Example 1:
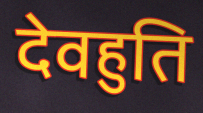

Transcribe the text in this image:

देवहुति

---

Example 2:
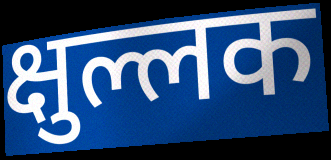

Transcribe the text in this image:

क्षुल्लक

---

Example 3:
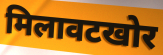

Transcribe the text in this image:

मिलावटखोर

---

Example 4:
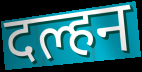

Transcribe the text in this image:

दल्हन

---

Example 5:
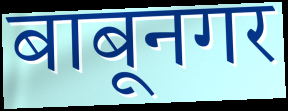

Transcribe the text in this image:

बाबूनगर